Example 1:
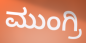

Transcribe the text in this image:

ಮುಂಗ್ರಿ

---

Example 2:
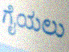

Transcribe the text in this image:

ಗೈಯಲು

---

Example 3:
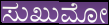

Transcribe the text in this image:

ಸುಖುಮೋ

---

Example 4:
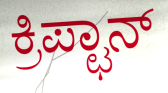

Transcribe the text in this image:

ಕ್ರಿಪ್ಟಾನ್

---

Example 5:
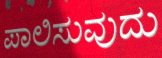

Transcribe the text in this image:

ಪಾಲಿಸುವುದು